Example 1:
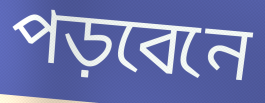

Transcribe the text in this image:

পড়বেনে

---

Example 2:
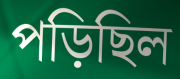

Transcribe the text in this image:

পড়িছিল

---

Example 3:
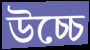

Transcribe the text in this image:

উচ্চে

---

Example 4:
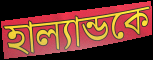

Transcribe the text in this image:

হাল্যান্ডকে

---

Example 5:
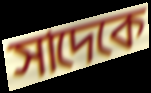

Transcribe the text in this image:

সাদেকে